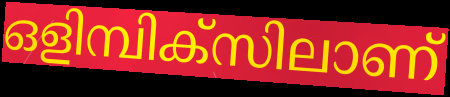
ഒളിമ്പിക്സിലാണ്